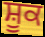
ਸ਼ੂਕ